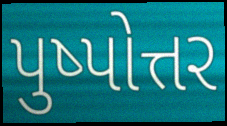
પુષ્પોત્તર